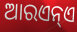
ଆରଏନ୍ଏ